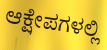
ಆಕ್ಷೇಪಗಳಲ್ಲಿ